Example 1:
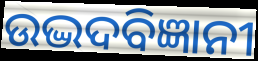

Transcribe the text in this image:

ଉଦ୍ଭଦବିଜ୍ଞାନୀ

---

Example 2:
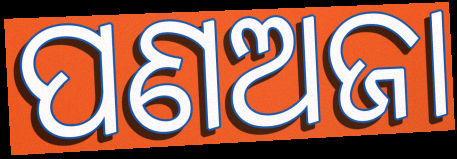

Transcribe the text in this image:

ପଣଅଜା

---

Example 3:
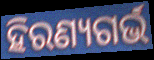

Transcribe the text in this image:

ହିରଣ୍ୟଗର୍ଭ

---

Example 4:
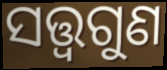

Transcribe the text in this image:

ସତ୍ତ୍ୱଗୁଣ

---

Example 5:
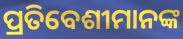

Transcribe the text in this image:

ପ୍ରତିବେଶୀମାନଙ୍କ